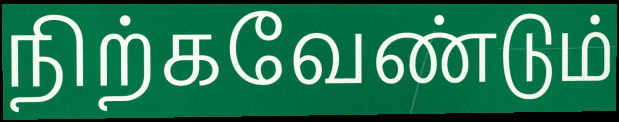
நிற்கவேண்டும்